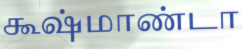
கூஷ்மாண்டா